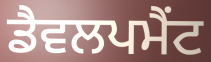
ਡੈਵਲਪਮੈਂਟ